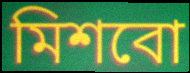
মিশবো